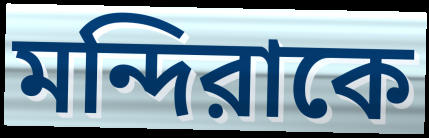
মন্দিরাকে